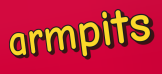
armpits